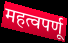
महत्‍वपर्णू